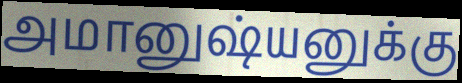
அமானுஷ்யனுக்கு